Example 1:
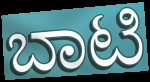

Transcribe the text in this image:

ಬಾಟಿ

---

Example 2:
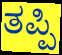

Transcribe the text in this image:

ತಪ್ಪಿ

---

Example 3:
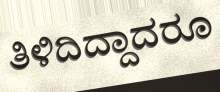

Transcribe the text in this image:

ತಿಳಿದಿದ್ದಾದರೂ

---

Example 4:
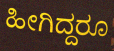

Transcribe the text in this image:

ಹೀಗಿದ್ದರೂ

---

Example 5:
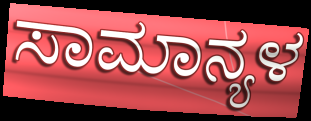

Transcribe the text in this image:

ಸಾಮಾನ್ಯಳ